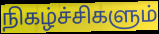
நிகழ்ச்சிகளும்